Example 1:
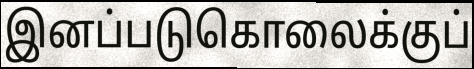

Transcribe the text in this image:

இனப்படுகொலைக்குப்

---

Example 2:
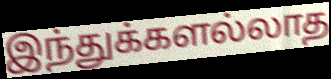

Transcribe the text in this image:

இந்துக்களல்லாத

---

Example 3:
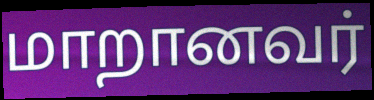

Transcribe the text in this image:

மாறானவர்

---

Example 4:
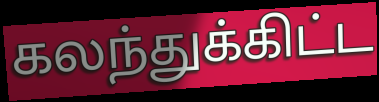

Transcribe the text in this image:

கலந்துக்கிட்ட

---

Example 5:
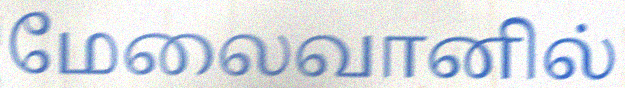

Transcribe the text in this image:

மேலைவானில்